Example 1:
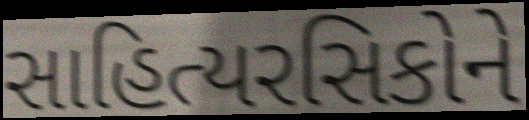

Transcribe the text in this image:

સાહિત્યરસિકોને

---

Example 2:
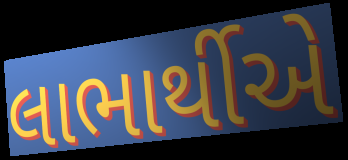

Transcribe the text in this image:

લાભાર્થીએ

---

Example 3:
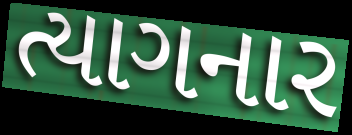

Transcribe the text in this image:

ત્યાગનાર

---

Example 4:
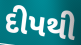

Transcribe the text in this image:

દીપથી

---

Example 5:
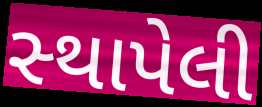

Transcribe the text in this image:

સ્‍થાપેલી